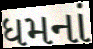
ધમનાં